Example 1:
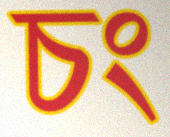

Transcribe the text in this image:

চং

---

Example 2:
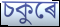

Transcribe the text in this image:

চকুৰে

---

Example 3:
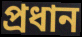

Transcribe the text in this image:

প্ৰধান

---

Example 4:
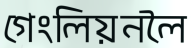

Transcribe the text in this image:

গেংলিয়নলৈ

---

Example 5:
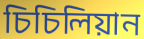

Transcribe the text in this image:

চিচিলিয়ান